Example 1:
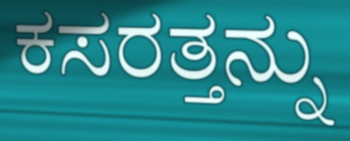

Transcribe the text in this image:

ಕಸರತ್ತನ್ನು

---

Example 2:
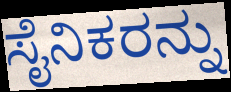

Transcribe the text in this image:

ಸೈನಿಕರನ್ನು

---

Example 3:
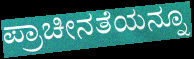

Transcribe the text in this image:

ಪ್ರಾಚೀನತೆಯನ್ನೂ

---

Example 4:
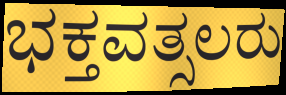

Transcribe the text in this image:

ಭಕ್ತವತ್ಸಲರು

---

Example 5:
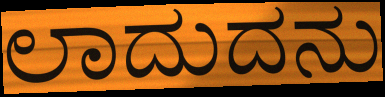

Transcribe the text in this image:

ಲಾದುದನು